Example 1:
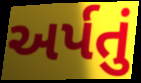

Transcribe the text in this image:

અર્પતું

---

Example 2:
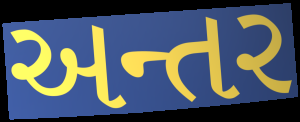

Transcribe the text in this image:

અન્તર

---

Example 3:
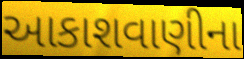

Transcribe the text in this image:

આકાશવાણીના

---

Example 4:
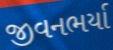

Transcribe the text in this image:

જીવનભર્યા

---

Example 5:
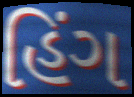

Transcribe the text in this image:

હિંગ